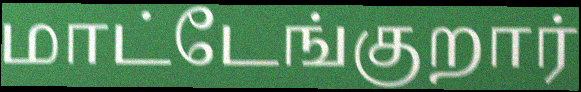
மாட்டேங்குறார்